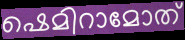
ഷെമിറാമോത്